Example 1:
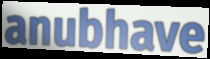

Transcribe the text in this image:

anubhave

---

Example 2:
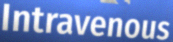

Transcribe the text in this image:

Intravenous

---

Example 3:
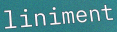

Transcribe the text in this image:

liniment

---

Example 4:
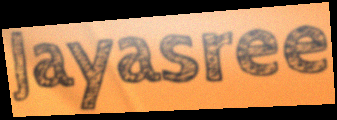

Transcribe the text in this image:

Jayasree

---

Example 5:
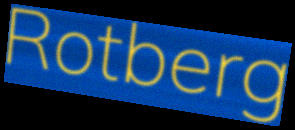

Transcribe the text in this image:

Rotberg